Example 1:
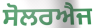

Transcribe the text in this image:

ਸੋਲਰਐਜ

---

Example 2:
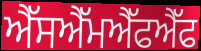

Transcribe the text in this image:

ਐੱਸਐੱਮਐੱਫਐੱਫ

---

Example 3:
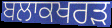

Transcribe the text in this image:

ਬਲਾਕਖਰੜ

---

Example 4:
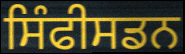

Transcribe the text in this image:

ਸਿੰਫੀਸਡਨ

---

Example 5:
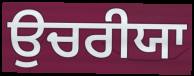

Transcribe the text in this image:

ਉਚਰੀਯਾ